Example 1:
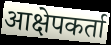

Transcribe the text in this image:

आक्षेपकर्ता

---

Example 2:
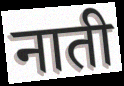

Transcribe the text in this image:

नाती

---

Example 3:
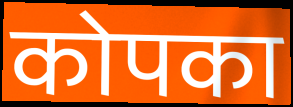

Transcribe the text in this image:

कोपका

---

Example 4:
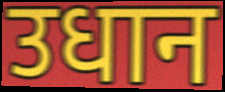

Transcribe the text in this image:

उधान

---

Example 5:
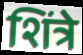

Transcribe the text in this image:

शिंत्रे